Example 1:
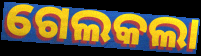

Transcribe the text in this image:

ଗେଲକଲା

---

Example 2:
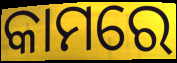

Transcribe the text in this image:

କାମରେ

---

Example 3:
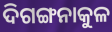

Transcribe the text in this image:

ଦିଗଙ୍ଗନାକୁଳ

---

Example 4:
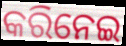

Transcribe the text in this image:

କରିନେଇ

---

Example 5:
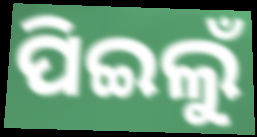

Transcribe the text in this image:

ପିଇଲୁଁ